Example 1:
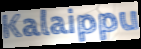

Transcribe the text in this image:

Kalaippu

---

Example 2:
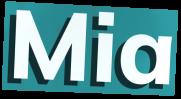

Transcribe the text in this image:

Mia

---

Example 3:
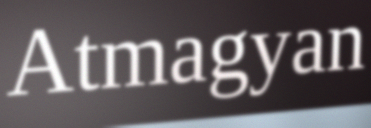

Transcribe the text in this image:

Atmagyan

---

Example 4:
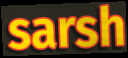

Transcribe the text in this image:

sarsh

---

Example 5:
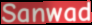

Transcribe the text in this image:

Sanwad